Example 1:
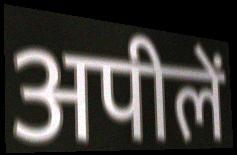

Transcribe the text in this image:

अपीलें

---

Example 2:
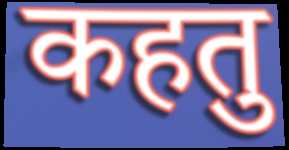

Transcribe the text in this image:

कहतु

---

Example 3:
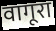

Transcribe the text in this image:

वागूरा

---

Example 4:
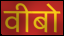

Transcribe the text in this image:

वीबो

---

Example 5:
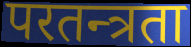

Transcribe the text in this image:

परतन्त्रता